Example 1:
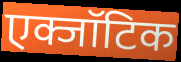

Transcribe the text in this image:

एक्जॉटिक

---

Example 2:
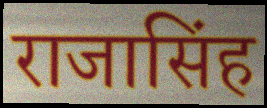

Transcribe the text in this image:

राजासिंह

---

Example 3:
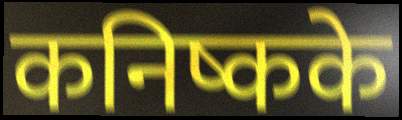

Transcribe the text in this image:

कनिष्कके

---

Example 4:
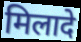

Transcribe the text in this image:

मिलादे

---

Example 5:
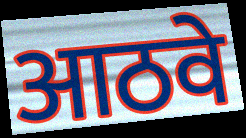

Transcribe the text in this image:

आठवे